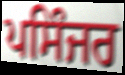
ਪਸਿੰਜਰ